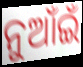
ନୁଆଁଇଁ